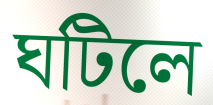
ঘটিলে